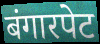
बंगारपेट